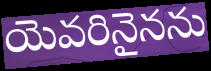
యెవరినైనను